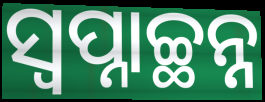
ସ୍ଵପ୍ନାଚ୍ଛନ୍ନ